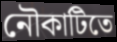
নৌকাটিতে